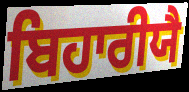
ਬਿਹਾਰੀਯੈ